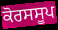
ਕੋਰਸਸੂਪ